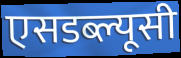
एसडब्ल्यूसी